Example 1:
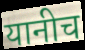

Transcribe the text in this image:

यानीच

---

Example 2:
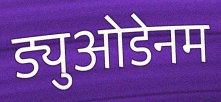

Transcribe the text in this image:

ड्युओडेनम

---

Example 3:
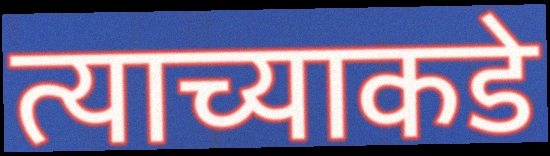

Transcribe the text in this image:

त्याच्याकडे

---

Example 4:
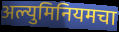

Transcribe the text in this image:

अल्युमिनियमचा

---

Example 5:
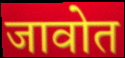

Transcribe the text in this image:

जावोत